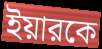
ইয়ারকে